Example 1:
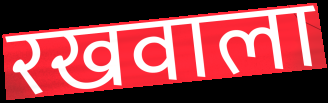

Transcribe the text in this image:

रखवाला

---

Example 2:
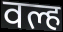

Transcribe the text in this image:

वल्ह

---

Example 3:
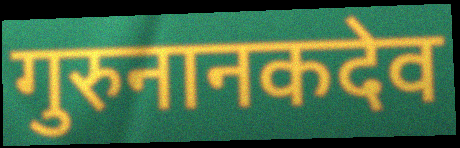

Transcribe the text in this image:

गुरुनानकदेव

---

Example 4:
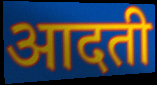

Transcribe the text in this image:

आदती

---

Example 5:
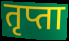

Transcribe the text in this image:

तृप्ता